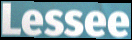
Lessee